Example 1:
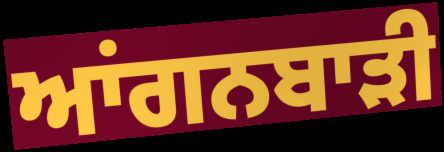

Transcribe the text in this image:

ਆਂਗਨਬਾੜੀ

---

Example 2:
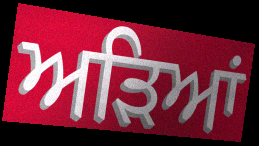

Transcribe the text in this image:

ਅੜਿਆਂ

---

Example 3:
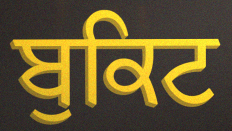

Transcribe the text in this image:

ਬੁਕਿਟ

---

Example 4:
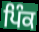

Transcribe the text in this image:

ਪਿੰਕ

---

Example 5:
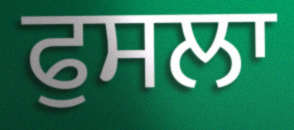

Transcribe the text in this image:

ਫੁਸਲਾ